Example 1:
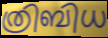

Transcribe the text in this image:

ത്രിബിധ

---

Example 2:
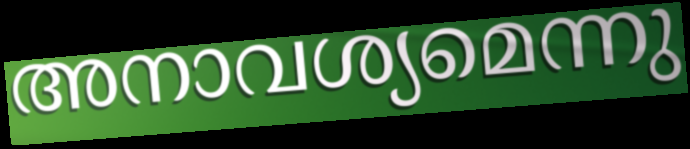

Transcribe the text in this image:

അനാവശ്യമെന്നു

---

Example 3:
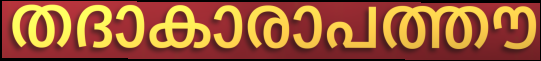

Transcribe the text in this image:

തദാകാരാപത്തൗ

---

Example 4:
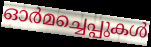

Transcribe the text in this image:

ഓർമച്ചെപ്പുകൾ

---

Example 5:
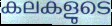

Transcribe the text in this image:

കലകളുടെ